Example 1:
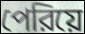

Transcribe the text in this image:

পেরিয়ে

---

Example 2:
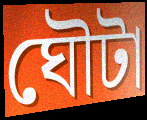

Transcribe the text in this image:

ঘৌটা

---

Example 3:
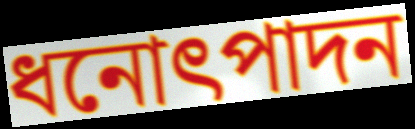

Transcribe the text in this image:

ধনোৎপাদন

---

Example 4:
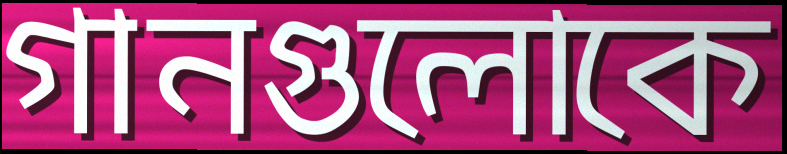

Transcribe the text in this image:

গানগুলোকে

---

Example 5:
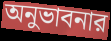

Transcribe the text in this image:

অনুভাবনার